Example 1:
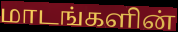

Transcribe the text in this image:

மாடங்களின்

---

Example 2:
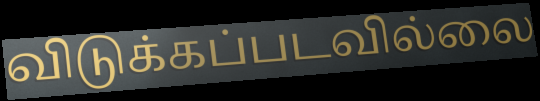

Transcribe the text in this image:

விடுக்கப்படவில்லை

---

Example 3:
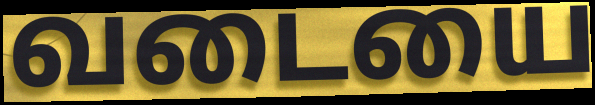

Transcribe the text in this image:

வடையை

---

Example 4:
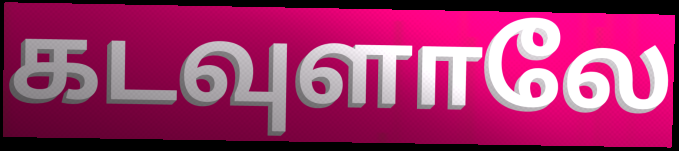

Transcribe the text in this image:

கடவுளாலே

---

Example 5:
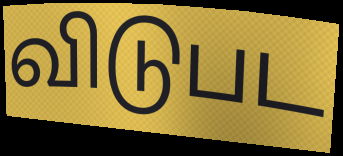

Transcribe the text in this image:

விடுபட